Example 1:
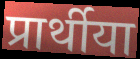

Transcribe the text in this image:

प्रार्थीया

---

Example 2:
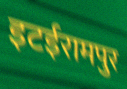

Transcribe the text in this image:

इटईरामपुर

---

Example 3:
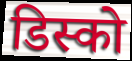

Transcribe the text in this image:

डिस्को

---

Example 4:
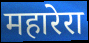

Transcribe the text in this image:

महारेरा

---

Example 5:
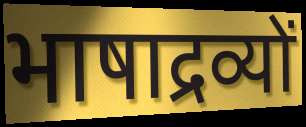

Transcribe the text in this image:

भाषाद्रव्यों